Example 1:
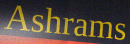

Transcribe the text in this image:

Ashrams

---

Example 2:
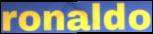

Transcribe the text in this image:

ronaldo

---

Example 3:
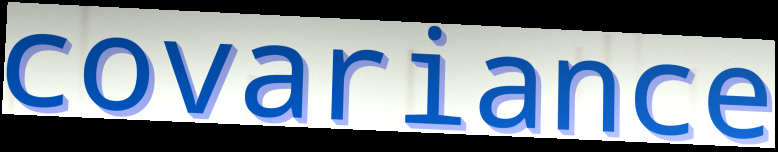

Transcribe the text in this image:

covariance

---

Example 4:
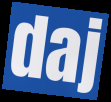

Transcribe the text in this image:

daj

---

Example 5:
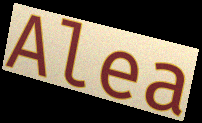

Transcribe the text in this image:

Alea